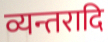
व्यन्तरादि